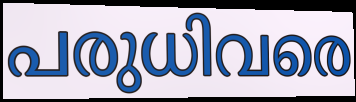
പരുധിവരെ